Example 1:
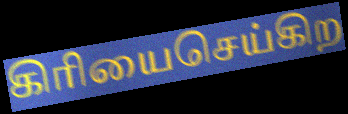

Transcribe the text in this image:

கிரியைசெய்கிற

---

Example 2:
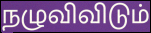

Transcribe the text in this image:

நழுவிவிடும்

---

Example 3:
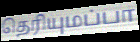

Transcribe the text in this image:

தெரியுமப்பா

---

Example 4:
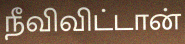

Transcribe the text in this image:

நீவிவிட்டான்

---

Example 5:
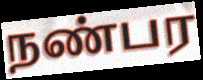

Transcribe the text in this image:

நண்பர